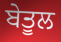
ਬੇਤੂਲ